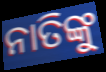
ନାତିଙ୍କୁ